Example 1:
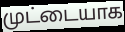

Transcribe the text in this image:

முட்டையாக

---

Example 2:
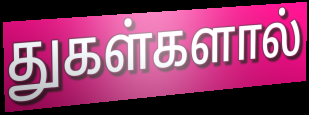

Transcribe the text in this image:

துகள்களால்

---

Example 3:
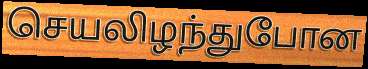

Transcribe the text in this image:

செயலிழந்துபோன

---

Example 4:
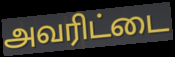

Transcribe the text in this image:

அவரிட்டை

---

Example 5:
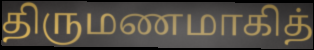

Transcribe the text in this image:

திருமணமாகித்